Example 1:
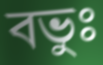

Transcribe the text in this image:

বভুঃ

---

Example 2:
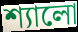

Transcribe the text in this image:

শ্যালো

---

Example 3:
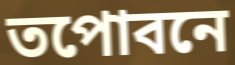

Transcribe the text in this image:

তপোবনে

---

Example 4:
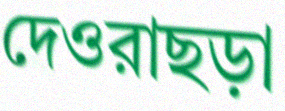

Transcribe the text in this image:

দেওরাছড়া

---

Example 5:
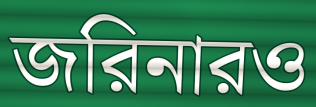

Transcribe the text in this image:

জরিনারও